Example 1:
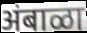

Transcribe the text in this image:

अंबाळा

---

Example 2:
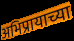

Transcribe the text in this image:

अभिप्रायाच्या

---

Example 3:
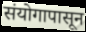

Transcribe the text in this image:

संयोगापासून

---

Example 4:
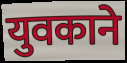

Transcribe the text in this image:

युवकाने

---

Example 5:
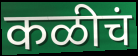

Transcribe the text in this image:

कळीचं